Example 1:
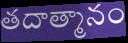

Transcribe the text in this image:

తదాత్మానం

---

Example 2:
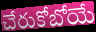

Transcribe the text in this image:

చేరుకోబోయే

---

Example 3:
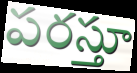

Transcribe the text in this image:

పరస్తూ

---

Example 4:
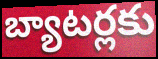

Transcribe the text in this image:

బ్యాటర్లకు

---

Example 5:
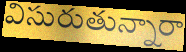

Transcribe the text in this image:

విసురుతున్నారా